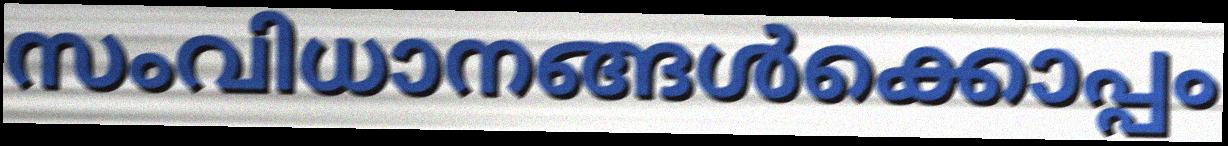
സംവിധാനങ്ങൾക്കൊപ്പം